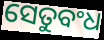
ସେତୁବଂଧ